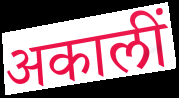
अकालीं